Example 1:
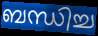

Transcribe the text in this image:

ബന്ധിച്ച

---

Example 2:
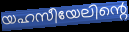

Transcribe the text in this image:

യഹസീയേലിന്റെ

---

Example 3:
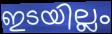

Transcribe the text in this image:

ഇടയില്ലം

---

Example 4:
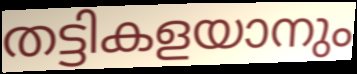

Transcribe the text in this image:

തട്ടികളയാനും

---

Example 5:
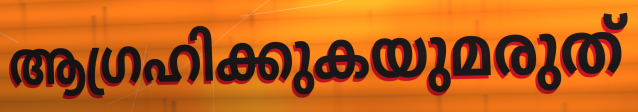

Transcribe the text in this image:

ആഗ്രഹിക്കുകയുമരുത്